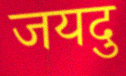
जयदु